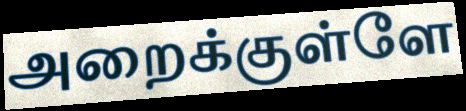
அறைக்குள்ளே